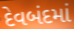
દેવબંદમાં